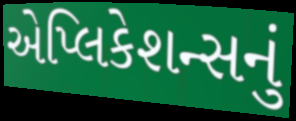
એપ્લિકેશન્સનું